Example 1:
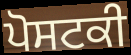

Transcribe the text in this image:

ਪੋਸਟਕੀ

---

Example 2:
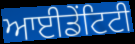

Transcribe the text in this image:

ਆਈਡੇਂਟਿਟੀ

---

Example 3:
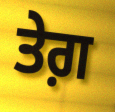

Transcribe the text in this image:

ਤੇਗ਼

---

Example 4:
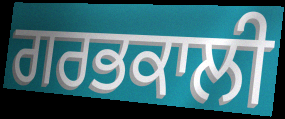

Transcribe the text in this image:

ਗਰਭਕਾਲੀ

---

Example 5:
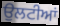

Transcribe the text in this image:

ਉਲਟੀਆਂ